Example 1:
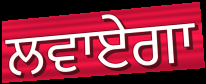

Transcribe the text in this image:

ਲਵਾਏਗਾ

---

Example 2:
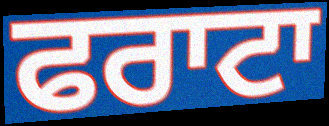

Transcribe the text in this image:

ਫਰਾਟਾ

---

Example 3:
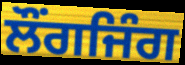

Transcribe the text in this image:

ਲੌਂਗਜਿੰਗ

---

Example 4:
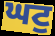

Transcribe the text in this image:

ਘਟੁ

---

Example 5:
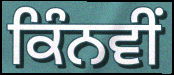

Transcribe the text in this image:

ਕਿੰਨਵੀਂ